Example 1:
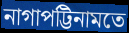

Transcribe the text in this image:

নাগাপট্টিনামতে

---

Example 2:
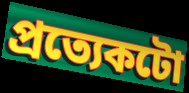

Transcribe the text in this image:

প্ৰত্যেকটো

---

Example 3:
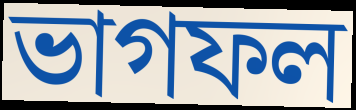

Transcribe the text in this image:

ভাগফল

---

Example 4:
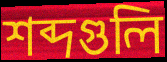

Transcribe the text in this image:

শব্দগুলি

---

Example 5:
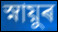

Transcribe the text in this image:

স্নায়ুৰ